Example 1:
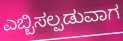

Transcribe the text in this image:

ಎಬ್ಬಿಸಲ್ಪಡುವಾಗ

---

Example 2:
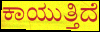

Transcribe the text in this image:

ಕಾಯುತ್ತಿದೆ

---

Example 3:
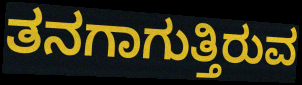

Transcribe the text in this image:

ತನಗಾಗುತ್ತಿರುವ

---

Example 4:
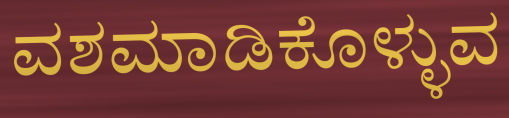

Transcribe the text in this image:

ವಶಮಾಡಿಕೊಳ್ಳುವ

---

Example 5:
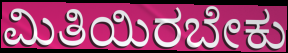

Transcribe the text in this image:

ಮಿತಿಯಿರಬೇಕು